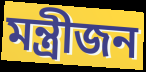
মন্ত্ৰীজন